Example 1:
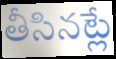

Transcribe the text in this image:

తీసినట్లే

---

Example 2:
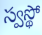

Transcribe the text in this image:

స్వస్థో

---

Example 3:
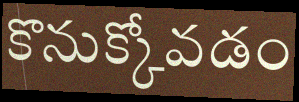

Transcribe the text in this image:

కొనుక్కోవడం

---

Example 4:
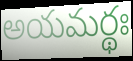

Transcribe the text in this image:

అయమర్థః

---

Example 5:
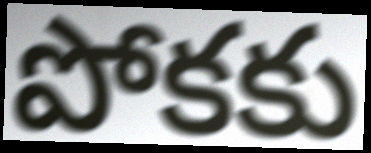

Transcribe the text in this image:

పోకకు